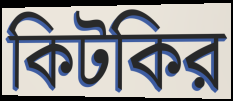
কিটকির